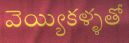
వెయ్యికళ్ళతో